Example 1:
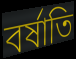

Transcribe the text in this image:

বর্ষাতি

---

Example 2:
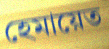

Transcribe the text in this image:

হেমায়েত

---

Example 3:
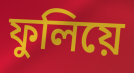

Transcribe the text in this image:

ফুলিয়ে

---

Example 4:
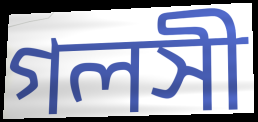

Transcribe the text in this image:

গলসী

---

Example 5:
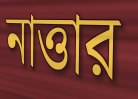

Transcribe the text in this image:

নাত্তার